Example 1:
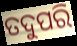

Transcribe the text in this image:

ତଦୁପରି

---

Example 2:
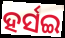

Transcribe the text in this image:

ହର୍ସଇ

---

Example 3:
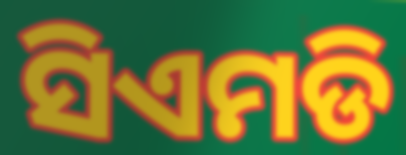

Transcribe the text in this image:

ସିଏମଡି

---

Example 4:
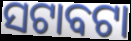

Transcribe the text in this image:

ସଟାବଟା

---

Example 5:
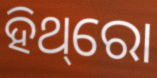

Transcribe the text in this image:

ହିଥ୍‌ରୋ